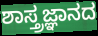
ಶಾಸ್ತ್ರಜ್ಞಾನದ